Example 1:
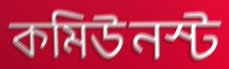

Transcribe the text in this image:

কমিউনস্ট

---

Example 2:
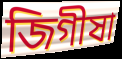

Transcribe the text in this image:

জিগীষা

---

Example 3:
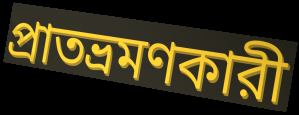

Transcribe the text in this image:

প্রাতভ্রমণকারী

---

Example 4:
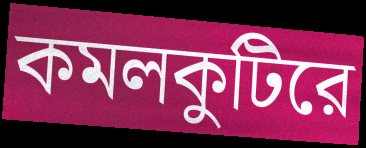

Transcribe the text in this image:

কমলকুটিরে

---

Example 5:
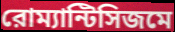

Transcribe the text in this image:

রোম্যান্টিসিজমে